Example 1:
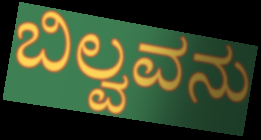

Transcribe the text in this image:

ಬಿಲ್ವವನು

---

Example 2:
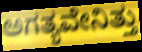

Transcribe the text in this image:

ಅಗತ್ಯವೇನಿತ್ತು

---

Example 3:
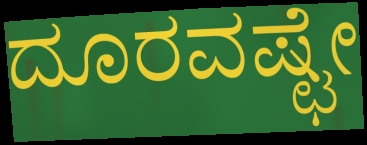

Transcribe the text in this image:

ದೂರವಷ್ಟೇ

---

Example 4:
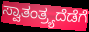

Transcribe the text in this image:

ಸ್ವಾತಂತ್ರ್ಯದೆಡೆಗೆ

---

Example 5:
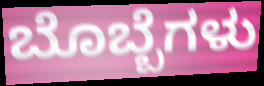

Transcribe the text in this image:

ಬೊಬ್ಬೆಗಳು